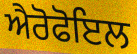
ਐਰੋਫੋਇਲ